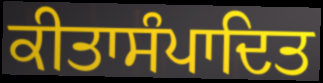
ਕੀਤਾਸੰਪਾਦਿਤ